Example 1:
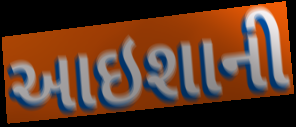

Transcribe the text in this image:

આઇશાની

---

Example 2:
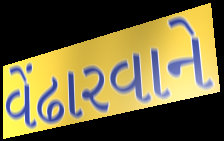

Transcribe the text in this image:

વેંઢારવાને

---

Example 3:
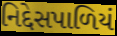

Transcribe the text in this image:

નિદ્દેસપાળિયં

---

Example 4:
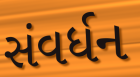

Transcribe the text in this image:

સંવર્ધન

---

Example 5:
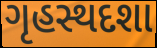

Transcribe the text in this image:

ગૃહસ્થદશા